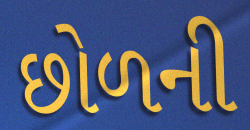
છોળની